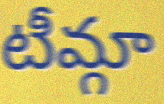
టీమ్గా